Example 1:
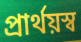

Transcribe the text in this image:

প্রার্থয়স্ব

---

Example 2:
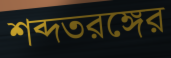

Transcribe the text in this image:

শব্দতরঙ্গের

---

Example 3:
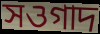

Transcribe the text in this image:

সওগাদ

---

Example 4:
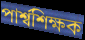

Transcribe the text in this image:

পার্শ্বশিক্ষক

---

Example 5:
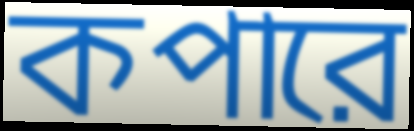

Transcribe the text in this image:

কপারে